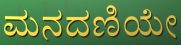
ಮನದಣಿಯೇ